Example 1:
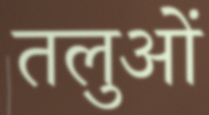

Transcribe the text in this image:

तलुओं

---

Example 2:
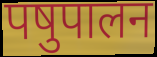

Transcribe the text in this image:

पषुपालन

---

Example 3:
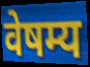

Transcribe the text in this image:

वेषम्य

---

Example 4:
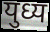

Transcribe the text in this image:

युध्य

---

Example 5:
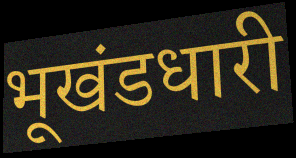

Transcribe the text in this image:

भूखंडधारी